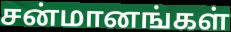
சன்மானங்கள்